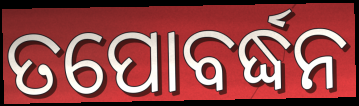
ତପୋବର୍ଦ୍ଧନ